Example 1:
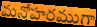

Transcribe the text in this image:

మనోహరముగా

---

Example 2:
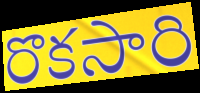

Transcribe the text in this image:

రొకసారి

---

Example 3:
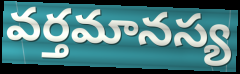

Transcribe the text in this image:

వర్తమానస్య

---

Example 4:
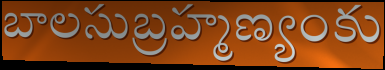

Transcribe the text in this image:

బాలసుబ్రహ్మణ్యంకు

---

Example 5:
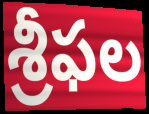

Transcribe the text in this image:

శ్రీఫల